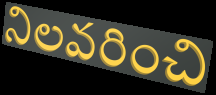
నిలవరించి